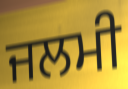
ਜਲਮੀ